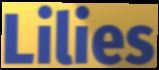
Lilies